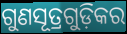
ଗୁଣସୂତ୍ରଗୁଡ଼ିକର